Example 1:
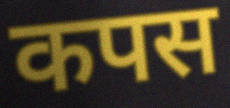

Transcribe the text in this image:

कपस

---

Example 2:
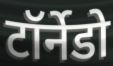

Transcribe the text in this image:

टॉर्नेडो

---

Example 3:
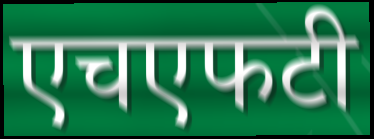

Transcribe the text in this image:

एचएफटी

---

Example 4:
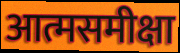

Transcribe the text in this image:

आत्मसमीक्षा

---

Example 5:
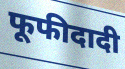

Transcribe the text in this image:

फूफीदादी